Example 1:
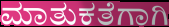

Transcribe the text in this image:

ಮಾತುಕತೆಗಾಗಿ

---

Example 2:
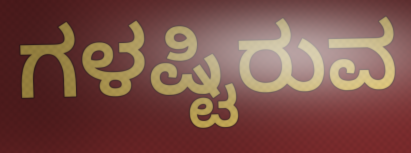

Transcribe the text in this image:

ಗಳಷ್ಟಿರುವ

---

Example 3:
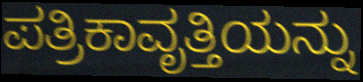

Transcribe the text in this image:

ಪತ್ರಿಕಾವೃತ್ತಿಯನ್ನು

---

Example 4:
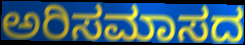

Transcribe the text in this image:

ಅರಿಸಮಾಸದ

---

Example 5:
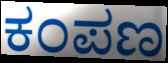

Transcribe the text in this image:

ಕಂಪಣ